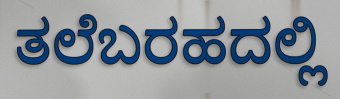
ತಲೆಬರಹದಲ್ಲಿ